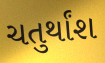
ચતુર્થાંશ